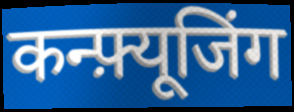
कन्फ़्यूजिंग